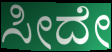
ಸೀದೇ